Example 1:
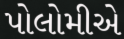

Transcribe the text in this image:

પોલોમીએ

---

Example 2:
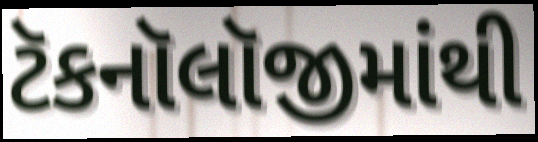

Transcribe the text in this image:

ટૅકનૉલૉજીમાંથી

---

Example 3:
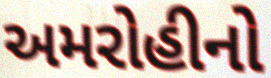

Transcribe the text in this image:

અમરોહીનો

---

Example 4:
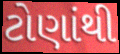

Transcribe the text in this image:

ટોણાંથી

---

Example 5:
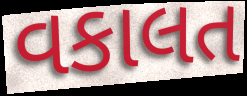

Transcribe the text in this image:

વકાલત